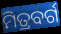
ମିତ୍ରବର୍ଗ